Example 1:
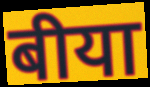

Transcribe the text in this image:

बीया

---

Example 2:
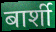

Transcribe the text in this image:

बार्शी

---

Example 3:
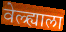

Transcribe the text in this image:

वेल्ह्याला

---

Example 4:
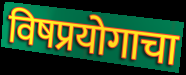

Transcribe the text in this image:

विषप्रयोगाचा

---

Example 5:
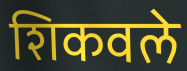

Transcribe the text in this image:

शिकवले